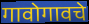
गावोगावचे